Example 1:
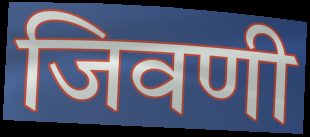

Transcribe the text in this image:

जिवणी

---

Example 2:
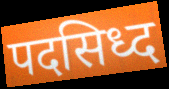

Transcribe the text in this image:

पदसिध्द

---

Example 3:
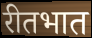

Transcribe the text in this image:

रीतभात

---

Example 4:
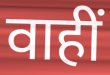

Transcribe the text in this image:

वाहीं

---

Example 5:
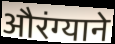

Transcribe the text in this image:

औरंग्याने